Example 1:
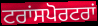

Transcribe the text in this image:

ਟਰਾਂਸਪੋਰਟਰਾਂ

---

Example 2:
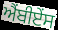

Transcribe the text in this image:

ਐਂਬੀਏਂਸ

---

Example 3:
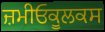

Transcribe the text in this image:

ਜ਼ਮੀਓਕੂਲਕਸ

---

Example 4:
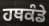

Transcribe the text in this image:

ਹਥਕੰਡੇ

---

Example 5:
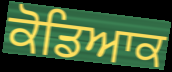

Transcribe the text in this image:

ਕੋਡਿਆਕ